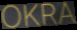
OKRA